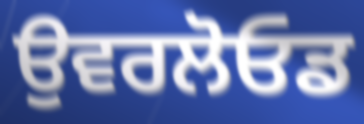
ਉਵਰਲੋਓਡ